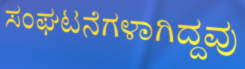
ಸಂಘಟನೆಗಳಾಗಿದ್ದವು